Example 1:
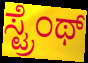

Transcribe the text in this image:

ಸ್ಟ್ರೆಂಥ್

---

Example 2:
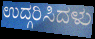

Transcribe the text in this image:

ಉದ್ಗರಿಸಿದಳು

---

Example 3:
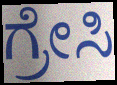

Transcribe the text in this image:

ಗ್ರೇಸಿ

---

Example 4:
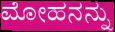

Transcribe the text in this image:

ಮೋಹನನ್ನು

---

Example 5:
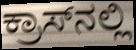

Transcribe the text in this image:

ಕ್ರಾಸ್‌ನಲ್ಲಿ